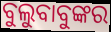
ବୁଲୁବାବୁଙ୍କର